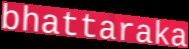
bhattaraka